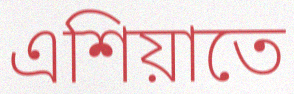
এশিয়াতে